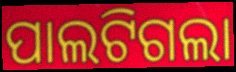
ପାଲଟିଗଲା